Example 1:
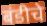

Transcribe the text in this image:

बंडीचे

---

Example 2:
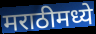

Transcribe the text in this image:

मराठीमध्ये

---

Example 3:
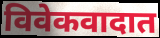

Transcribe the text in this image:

विवेकवादात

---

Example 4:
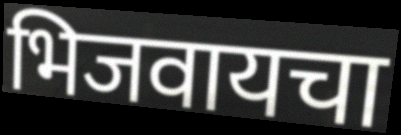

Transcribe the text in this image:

भिजवायचा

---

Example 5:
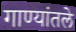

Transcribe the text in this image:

गाण्यांतले